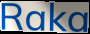
Raka